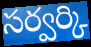
సర్వర్కి